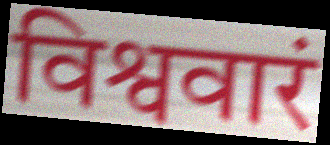
विश्ववारं